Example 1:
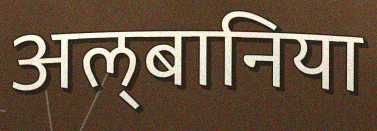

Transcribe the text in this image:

अल्बानिया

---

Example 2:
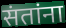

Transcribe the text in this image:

संतांना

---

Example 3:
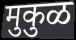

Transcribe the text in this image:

मुकुळ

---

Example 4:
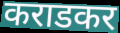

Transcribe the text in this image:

कराडकर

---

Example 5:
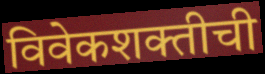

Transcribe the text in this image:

विवेकशक्तीची